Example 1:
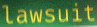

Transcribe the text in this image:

lawsuit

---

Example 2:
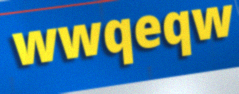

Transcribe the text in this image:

wwqeqw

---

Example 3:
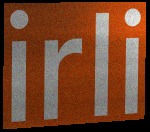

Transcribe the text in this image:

irli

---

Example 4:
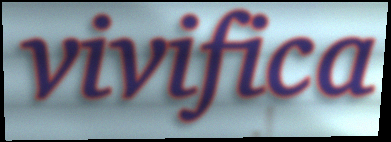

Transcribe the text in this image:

vivifica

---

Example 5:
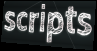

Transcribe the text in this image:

scripts